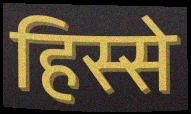
हिस्से